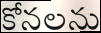
కోనలను